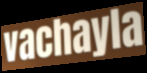
vachayla